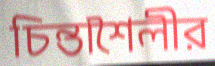
চিন্তাশৈলীর